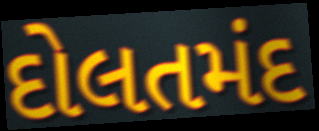
દોલતમંદ